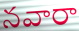
నవారా